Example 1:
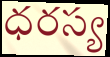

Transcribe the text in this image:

ధరస్య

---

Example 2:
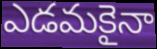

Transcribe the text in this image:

ఎడమకైనా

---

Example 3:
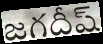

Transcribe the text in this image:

జగదీష్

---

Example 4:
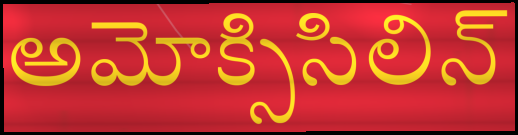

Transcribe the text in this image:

అమోక్సిసిలిన్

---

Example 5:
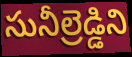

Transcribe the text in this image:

సునీల్రెడ్డిని